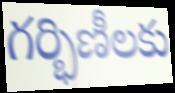
గర్భిణీలకు